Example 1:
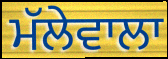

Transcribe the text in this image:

ਮੱਲੇਵਾਲਾ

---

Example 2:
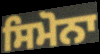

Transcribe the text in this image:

ਸਿਮੋਨਾ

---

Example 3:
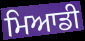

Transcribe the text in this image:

ਮਿਆਡੀ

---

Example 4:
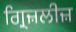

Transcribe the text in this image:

ਗ੍ਰਿਜ਼ਲੀਜ਼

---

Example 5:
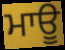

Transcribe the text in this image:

ਮਾਊ